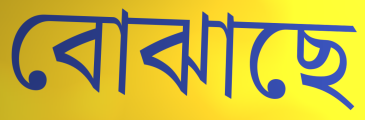
বোঝাছে